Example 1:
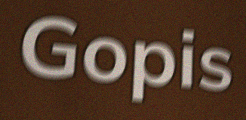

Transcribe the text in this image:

Gopis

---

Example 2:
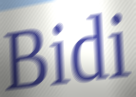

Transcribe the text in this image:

Bidi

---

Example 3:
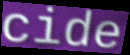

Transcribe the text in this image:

cide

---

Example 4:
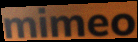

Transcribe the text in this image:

mimeo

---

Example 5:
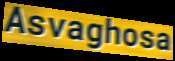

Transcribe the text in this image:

Asvaghosa